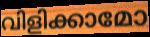
വിളിക്കാമോ